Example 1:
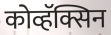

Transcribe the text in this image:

कोव्हॅक्सिन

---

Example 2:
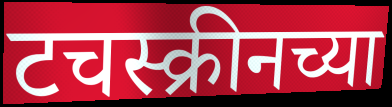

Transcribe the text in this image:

टचस्क्रीनच्या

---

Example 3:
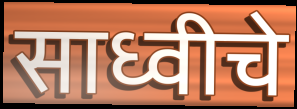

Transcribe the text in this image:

साध्वीचे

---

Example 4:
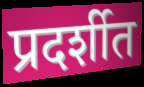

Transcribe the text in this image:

प्रदर्शीत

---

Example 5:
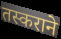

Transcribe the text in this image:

तस्कराने